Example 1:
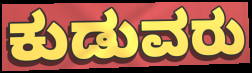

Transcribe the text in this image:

ಕುಡುವರು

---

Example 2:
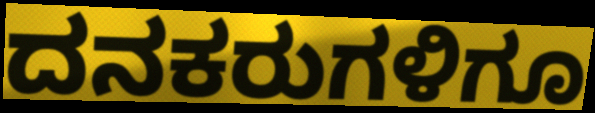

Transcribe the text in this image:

ದನಕರುಗಳಿಗೂ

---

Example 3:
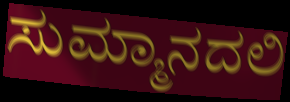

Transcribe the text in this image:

ಸುಮ್ಮಾನದಲಿ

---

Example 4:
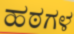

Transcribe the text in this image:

ಹಠಗಳ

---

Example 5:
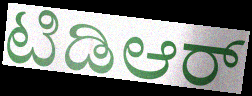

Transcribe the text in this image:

ಟಿಡಿಆರ್